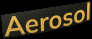
Aerosol